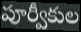
పూర్వీకుల